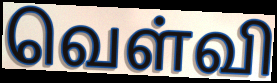
வெள்வி